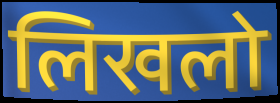
लिखलो